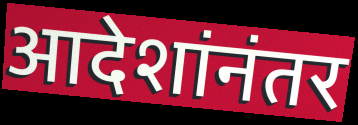
आदेशांनंतर